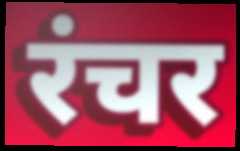
रंचर